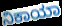
ನಿಕಾಯಾ